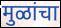
मुळांचा